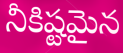
నీకిష్టమైన